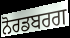
ਨੋਰਡਬਰਗ